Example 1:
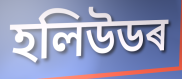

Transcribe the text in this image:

হলিউডৰ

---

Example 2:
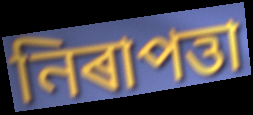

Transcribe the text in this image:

নিৰাপত্তা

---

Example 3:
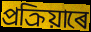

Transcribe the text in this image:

প্ৰক্ৰিয়াৰে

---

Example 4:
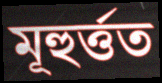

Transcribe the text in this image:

মূহুৰ্ত্তত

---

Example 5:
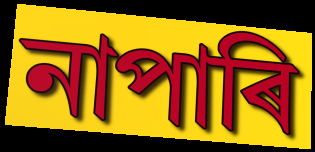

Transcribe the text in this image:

নাপাৰি